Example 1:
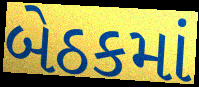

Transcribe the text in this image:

બેઠકમાં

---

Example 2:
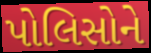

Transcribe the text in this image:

પોલિસોને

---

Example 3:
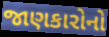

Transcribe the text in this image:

જાણકારોનો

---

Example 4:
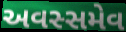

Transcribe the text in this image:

અવસ્સમેવ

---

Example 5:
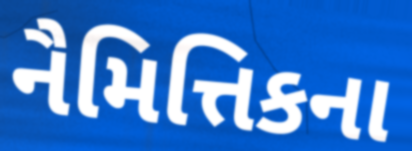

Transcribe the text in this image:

નૈમિત્તિકના